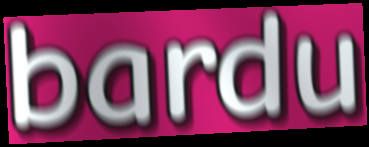
bardu